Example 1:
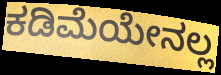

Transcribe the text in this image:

ಕಡಿಮೆಯೇನಲ್ಲ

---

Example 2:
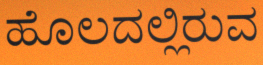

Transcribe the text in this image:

ಹೊಲದಲ್ಲಿರುವ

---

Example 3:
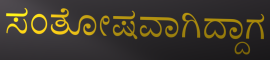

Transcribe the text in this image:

ಸಂತೋಷವಾಗಿದ್ದಾಗ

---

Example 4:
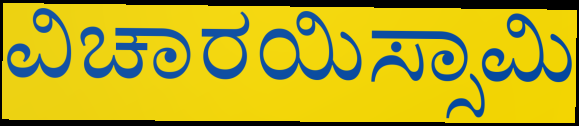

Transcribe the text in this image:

ವಿಚಾರಯಿಸ್ಸಾಮಿ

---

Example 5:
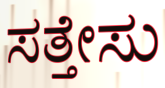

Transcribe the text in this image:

ಸತ್ತೇಸು